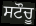
ਸਟੌਚੂ